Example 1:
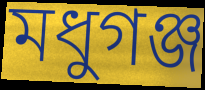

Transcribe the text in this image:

মধুগঞ্জ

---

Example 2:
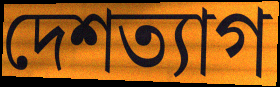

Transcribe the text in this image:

দেশত্যাগ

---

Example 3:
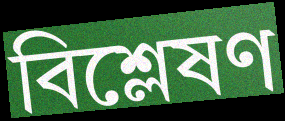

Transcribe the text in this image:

বিশ্লেষণ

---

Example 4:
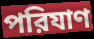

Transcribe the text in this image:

পরিযাণ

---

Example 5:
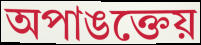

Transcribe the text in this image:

অপাঙক্তেয়